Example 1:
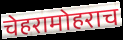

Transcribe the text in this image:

चेहरामोहराच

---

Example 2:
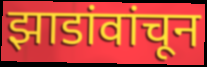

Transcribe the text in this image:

झाडांवांचून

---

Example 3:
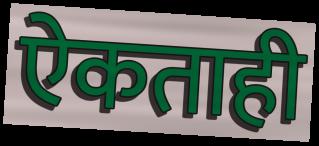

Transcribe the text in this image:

ऐकताही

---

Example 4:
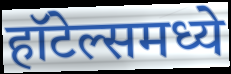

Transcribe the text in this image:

हॉटेल्समध्ये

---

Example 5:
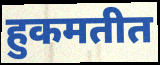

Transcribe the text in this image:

हुकमतीत